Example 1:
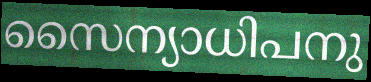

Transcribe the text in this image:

സൈന്യാധിപനു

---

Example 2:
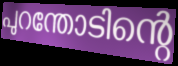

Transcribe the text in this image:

പുറന്തോടിന്റെ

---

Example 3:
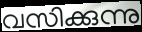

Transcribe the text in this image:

വസിക്കുന്നു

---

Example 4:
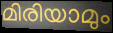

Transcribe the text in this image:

മിരിയാമും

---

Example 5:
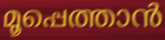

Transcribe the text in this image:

മൂപ്പെത്താൻ